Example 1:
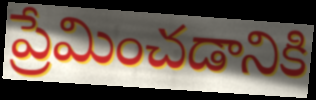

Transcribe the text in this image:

ప్రేమించడానికి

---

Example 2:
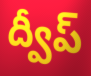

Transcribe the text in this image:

ద్వీప్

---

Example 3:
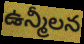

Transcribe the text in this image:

ఉన్మీలన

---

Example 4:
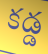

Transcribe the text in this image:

కడ్డ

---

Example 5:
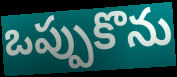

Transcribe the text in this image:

ఒప్పుకొను